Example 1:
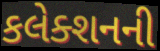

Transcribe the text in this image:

કલેક્શનની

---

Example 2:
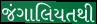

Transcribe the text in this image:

જંગાલિયતથી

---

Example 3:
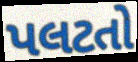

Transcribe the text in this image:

પલટતો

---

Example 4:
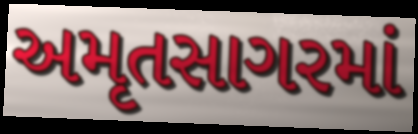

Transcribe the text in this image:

અમૃતસાગરમાં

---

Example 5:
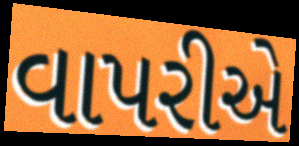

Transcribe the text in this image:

વાપરીએ